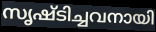
സൃഷ്ടിച്ചവനായി